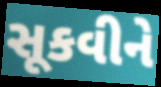
સૂકવીને